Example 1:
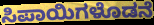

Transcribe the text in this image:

ಸಿಪಾಯಿಗಳೊಡನೆ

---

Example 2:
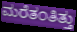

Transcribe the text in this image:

ಮರೆತಂತಿತ್ತು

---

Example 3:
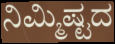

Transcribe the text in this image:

ನಿಮ್ಮಿಷ್ಟದ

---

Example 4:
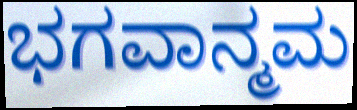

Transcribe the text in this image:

ಭಗವಾನ್ಮಮ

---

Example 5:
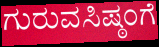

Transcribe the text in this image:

ಗುರುವಸಿಷ್ಠಂಗೆ